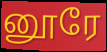
னூரே